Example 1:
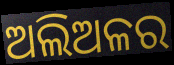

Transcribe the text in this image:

ଅଲିଅଳର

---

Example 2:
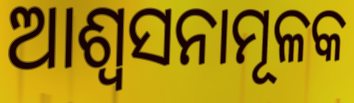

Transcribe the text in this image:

ଆଶ୍ୱସନାମୂଳକ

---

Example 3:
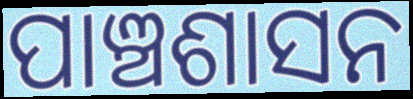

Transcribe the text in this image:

ପାଞ୍ଚଶାସନ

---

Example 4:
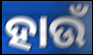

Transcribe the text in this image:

ହାଉଁ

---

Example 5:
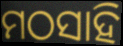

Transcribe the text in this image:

ମଠସାହି